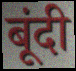
बूंदी